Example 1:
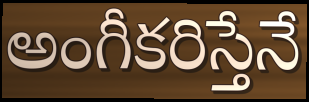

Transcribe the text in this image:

అంగీకరిస్తేనే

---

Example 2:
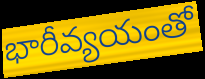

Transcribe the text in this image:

భారీవ్యయంతో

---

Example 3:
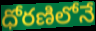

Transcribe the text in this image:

ధోరణిలోనే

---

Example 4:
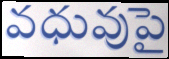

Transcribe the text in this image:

వధువుపై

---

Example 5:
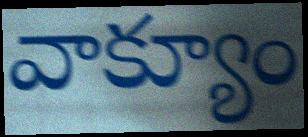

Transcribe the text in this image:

వాక్యూం